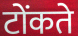
टोंकते